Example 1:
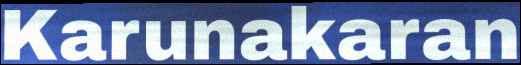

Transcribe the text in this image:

Karunakaran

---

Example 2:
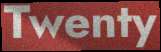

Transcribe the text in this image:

Twenty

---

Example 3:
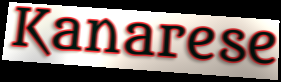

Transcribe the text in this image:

Kanarese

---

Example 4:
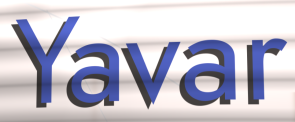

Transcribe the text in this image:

Yavar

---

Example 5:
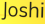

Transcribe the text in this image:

Joshi